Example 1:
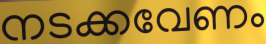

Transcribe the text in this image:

നടക്കവേണം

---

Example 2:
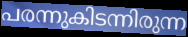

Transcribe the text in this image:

പരന്നുകിടന്നിരുന്ന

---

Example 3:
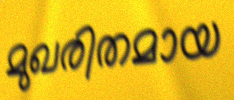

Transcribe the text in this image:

മുഖരിതമായ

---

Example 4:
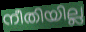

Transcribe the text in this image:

നീതിയില്ല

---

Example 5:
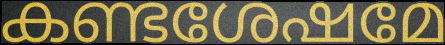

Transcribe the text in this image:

കണ്ടശേഷമേ